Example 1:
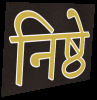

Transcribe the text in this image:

निष्ठे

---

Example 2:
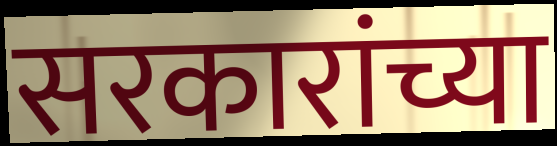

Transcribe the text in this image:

सरकारांच्या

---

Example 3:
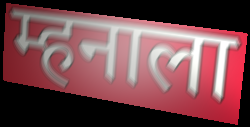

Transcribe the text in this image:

म्हनाला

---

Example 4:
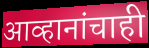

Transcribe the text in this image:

आव्हानांचाही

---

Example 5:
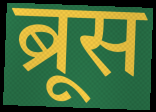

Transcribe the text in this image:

ब्रूस